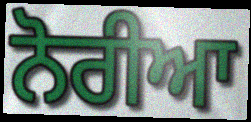
ਨੋਰੀਆ